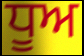
ਧੂਅ